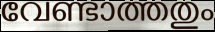
വേണ്ടാത്തതും